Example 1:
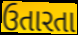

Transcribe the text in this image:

ઉતારતા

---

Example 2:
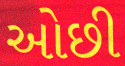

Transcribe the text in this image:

ઓછી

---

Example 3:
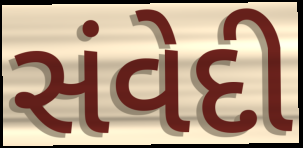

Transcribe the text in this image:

સંવેદી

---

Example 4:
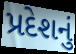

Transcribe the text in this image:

પ્રદેશનું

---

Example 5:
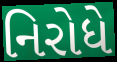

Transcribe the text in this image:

નિરોધે